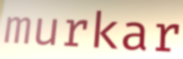
murkar